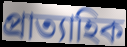
প্ৰাত্যাহিক